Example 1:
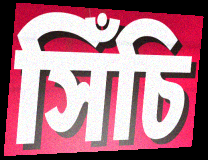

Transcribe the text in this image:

সিঁচি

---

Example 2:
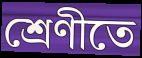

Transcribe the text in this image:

শ্ৰেণীতে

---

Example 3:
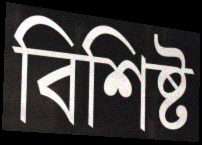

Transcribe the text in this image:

বিশিষ্ট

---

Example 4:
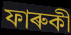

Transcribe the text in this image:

ফাৰুকী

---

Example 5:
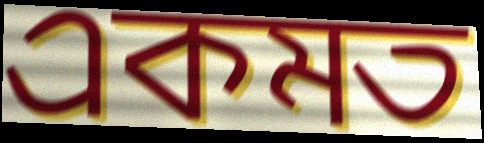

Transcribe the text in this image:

একমত